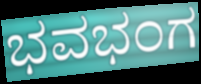
ಭವಭಂಗ